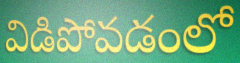
విడిపోవడంలో